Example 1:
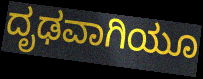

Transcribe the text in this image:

ದೃಢವಾಗಿಯೂ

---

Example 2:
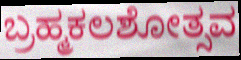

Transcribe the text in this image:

ಬ್ರಹ್ಮಕಲಶೋತ್ಸವ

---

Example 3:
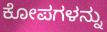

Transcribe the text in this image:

ಕೋಪಗಳನ್ನು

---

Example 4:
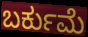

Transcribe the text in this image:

ಬರ್ಕುಮೆ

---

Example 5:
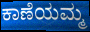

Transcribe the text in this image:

ಕಾಣೆಯಮ್ಮ